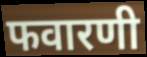
फवारणी